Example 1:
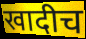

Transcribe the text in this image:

खादीच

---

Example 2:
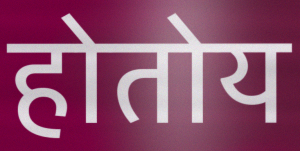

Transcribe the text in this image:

होतोय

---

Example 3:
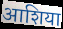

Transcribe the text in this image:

आशिया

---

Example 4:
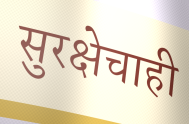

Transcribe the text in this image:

सुरक्षेचाही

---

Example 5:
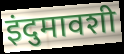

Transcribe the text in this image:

इंदुमावशी